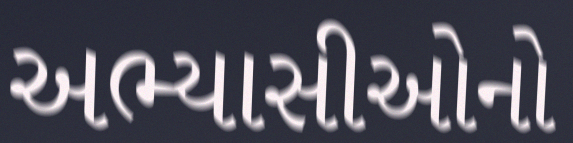
અભ્યાસીઓનો